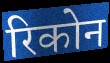
रिकोन